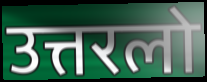
उत्तरलो